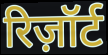
रिज़ॉर्ट